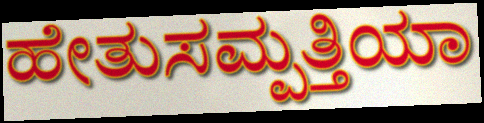
ಹೇತುಸಮ್ಪತ್ತಿಯಾ